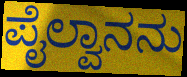
ಪೈಲ್ವಾನನು